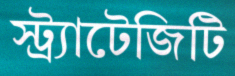
স্ট্র্যাটেজিটি